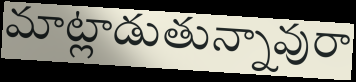
మాట్లాడుతున్నావురా